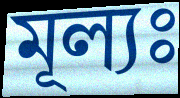
মূল্যঃ